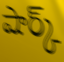
షార్క్